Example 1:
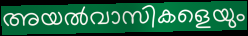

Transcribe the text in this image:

അയൽവാസികളെയും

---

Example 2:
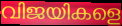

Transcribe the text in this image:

വിജയികളെ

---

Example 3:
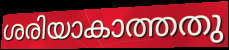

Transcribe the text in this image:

ശരിയാകാത്തതു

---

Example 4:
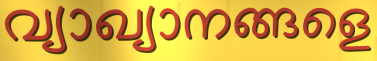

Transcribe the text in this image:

വ്യാഖ്യാനങ്ങളെ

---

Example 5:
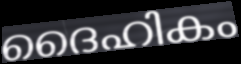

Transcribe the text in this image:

ദൈഹികം